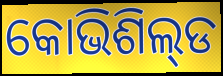
କୋଭିଶିଲ୍‌ଡ